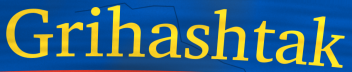
Grihashtak